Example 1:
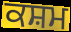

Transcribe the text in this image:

ਕਸ਼ਮ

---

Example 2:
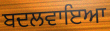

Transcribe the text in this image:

ਬਦਲਵਾਇਆ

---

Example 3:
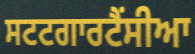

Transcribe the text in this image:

ਸਟਟਗਾਰਟੈਂਸੀਆ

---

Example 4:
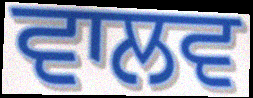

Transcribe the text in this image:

ਵਾਲਵ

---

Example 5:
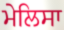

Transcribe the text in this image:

ਮੇਲਿਸਾ